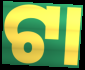
ଟା